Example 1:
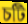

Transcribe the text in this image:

চটি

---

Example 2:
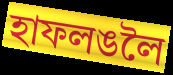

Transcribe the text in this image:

হাফলঙলৈ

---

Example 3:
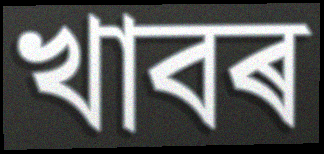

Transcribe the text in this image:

খাবৰ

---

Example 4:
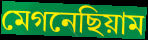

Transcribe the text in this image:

মেগনেছিয়াম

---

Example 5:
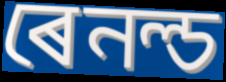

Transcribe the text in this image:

ৰেনল্ড